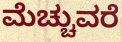
ಮೆಚ್ಚುವರೆ